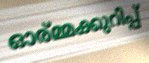
ഓര്മ്മക്കുറിപ്പ്